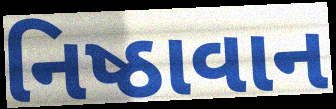
નિષ્ઠાવાન